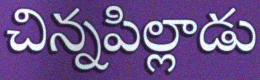
చిన్నపిల్లాడు